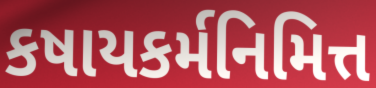
કષાયકર્મનિમિત્ત